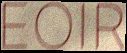
EOIR